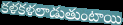
కళకళలాడుతుంటాయి